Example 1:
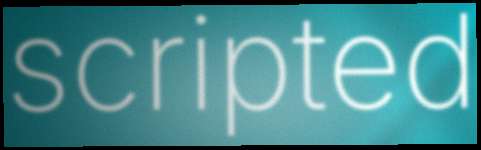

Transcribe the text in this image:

scripted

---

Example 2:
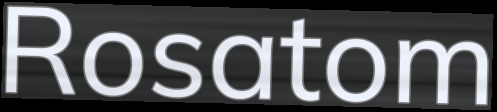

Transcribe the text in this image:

Rosatom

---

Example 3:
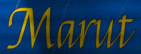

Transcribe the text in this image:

Marut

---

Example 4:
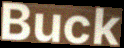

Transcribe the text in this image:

Buck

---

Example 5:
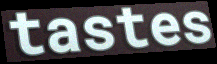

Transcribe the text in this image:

tastes